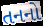
તનનો